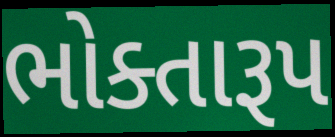
ભોક્તારૂપ